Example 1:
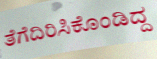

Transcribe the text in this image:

ತೆಗೆದಿರಿಸಿಕೊಂಡಿದ್ದ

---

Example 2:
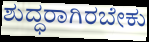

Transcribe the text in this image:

ಶುದ್ಧರಾಗಿರಬೇಕು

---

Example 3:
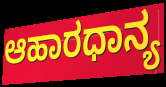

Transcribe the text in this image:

ಆಹಾರಧಾನ್ಯ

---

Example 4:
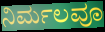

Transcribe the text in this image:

ನಿರ್ಮಲವೂ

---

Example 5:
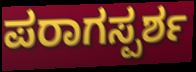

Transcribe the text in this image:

ಪರಾಗಸ್ಪರ್ಶ